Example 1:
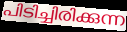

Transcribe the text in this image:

പിടിച്ചിരിക്കുന്ന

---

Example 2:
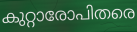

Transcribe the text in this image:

കുറ്റാരോപിതരെ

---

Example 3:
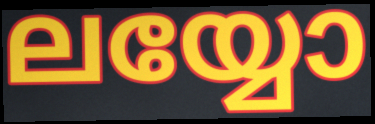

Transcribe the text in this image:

ലയ്യോ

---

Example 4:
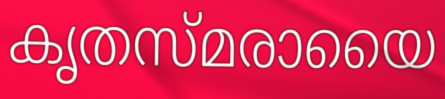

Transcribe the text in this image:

കൃതസ്മരായൈ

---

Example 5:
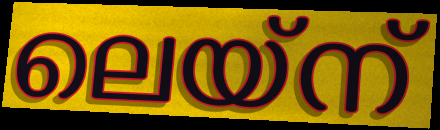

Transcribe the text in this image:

ലെയ്ന്